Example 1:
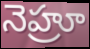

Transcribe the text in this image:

నెహ్రూ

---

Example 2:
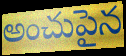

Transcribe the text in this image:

అంచుపైన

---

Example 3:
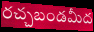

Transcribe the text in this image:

రచ్చబండమీద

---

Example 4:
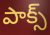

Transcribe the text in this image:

పాక్స్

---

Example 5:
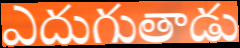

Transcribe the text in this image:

ఎదుగుతాడు